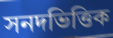
সনদভিত্তিক